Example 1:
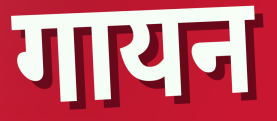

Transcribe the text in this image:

गायन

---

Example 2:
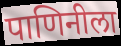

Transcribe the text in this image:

पाणिनीला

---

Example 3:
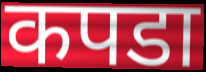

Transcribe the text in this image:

कपडा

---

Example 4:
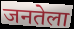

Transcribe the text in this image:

जनतेला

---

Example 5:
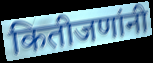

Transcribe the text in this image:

कितीजणांनी